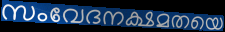
സംവേദനക്ഷമതയെ